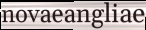
novaeangliae